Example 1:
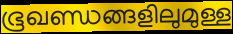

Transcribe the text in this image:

ഭൂഖണ്ഡങ്ങളിലുമുള്ള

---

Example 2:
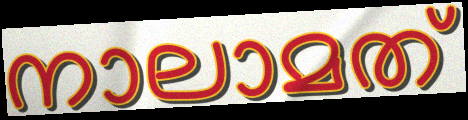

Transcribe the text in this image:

നാലാമത്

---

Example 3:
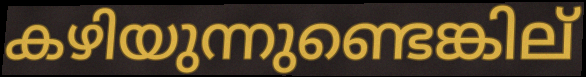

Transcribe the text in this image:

കഴിയുന്നുണ്ടെങ്കില്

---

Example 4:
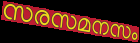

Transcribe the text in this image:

സരസമനസം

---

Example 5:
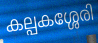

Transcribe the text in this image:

കല്പകശ്ശേരി